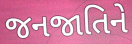
જનજાતિને